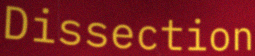
Dissection